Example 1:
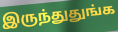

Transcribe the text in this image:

இருந்துதுங்க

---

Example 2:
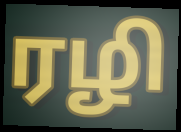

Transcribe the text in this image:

ரழி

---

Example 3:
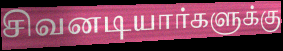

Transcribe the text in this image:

சிவனடியார்களுக்கு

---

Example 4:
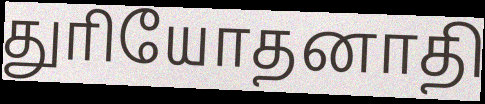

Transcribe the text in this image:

துரியோதனாதி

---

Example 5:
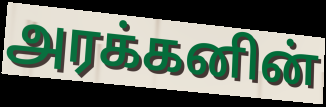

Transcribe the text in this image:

அரக்கனின்